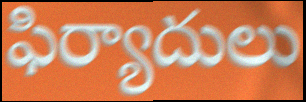
ఫిర్యాదులు